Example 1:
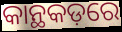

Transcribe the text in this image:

କାନ୍ଥକଡ଼ରେ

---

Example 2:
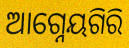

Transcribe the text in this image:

ଆଗ୍ନେୟଗିରି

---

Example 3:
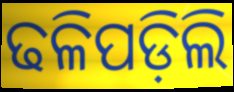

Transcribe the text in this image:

ଢଳିପଡ଼ିଲି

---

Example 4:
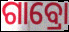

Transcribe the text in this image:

ଗାବ୍ରୋ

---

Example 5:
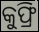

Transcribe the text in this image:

କୁଫ୍ରି